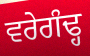
ਵਰੇਗੰਢ੍ਹ